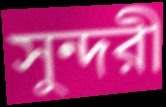
সুন্দরী